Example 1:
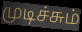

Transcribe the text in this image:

முடிச்சும்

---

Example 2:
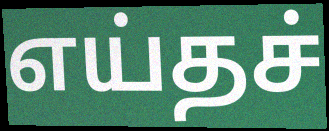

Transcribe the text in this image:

எய்தச்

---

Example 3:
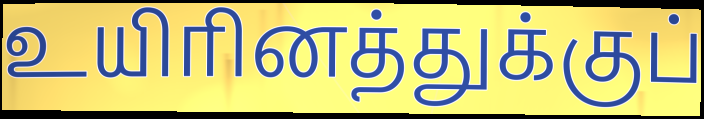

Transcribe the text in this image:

உயிரினத்துக்குப்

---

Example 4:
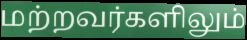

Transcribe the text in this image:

மற்றவர்களிலும்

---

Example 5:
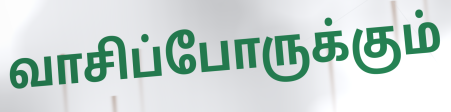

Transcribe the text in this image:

வாசிப்போருக்கும்